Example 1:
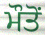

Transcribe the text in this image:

ਮੌਤੋਂ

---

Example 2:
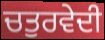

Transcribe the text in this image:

ਚਤੁਰਵੇਦੀ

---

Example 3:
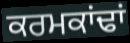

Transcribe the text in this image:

ਕਰਮਕਾਂਢਾਂ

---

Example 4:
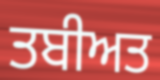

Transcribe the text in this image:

ਤਬੀਅਤ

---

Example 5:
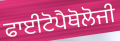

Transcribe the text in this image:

ਫਾਈਟੋਪੈਥੋਲੋਜੀ